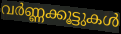
വർണ്ണക്കൂട്ടുകൾ